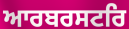
ਆਰਬਰਸਟਰਿ